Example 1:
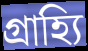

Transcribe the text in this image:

গ্রাহ্যি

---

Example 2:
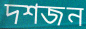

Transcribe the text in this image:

দশজন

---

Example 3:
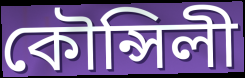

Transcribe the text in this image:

কৌন্সিলী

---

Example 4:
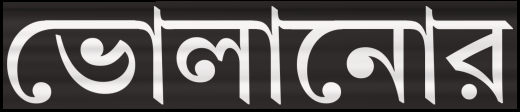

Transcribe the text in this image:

ভোলানোর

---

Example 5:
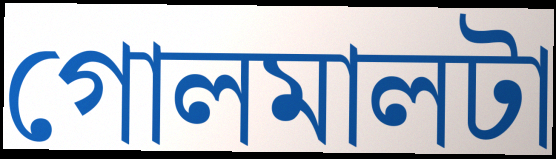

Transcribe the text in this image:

গোলমালটা